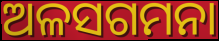
ଅଳସଗମନା